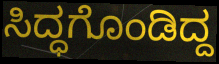
ಸಿದ್ಧಗೊಂಡಿದ್ದ